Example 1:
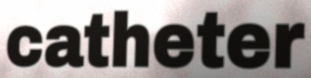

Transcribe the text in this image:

catheter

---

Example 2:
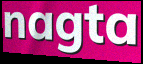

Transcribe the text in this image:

nagta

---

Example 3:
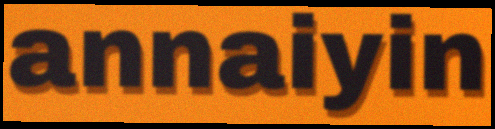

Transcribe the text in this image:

annaiyin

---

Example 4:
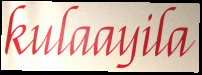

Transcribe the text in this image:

kulaayila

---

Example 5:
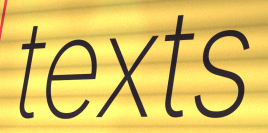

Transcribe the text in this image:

texts